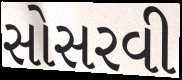
સોસરવી